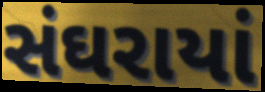
સંઘરાયાં